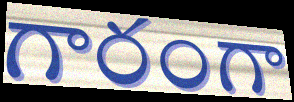
గారంగా